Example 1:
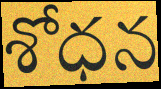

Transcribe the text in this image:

శోధన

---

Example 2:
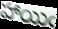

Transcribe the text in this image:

హాయిఁ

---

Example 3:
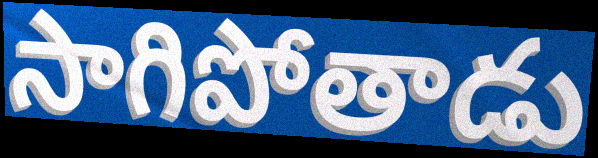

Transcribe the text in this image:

సాగిపోతాడు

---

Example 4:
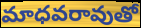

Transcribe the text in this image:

మాధవరావుతో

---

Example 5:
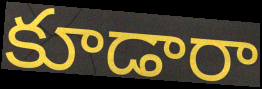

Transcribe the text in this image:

కూడారా